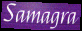
Samagra